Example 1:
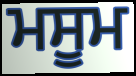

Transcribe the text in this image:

ਮਸੂਮ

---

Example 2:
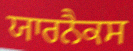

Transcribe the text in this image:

ਯਾਰਨੈਕਸ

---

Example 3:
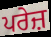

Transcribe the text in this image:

ਪਰੇਜ਼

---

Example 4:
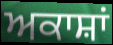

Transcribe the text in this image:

ਅਕਾਸ਼ਾਂ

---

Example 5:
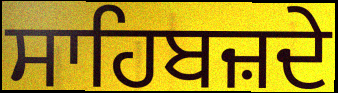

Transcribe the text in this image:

ਸਾਹਿਬਜ਼ਦੇ